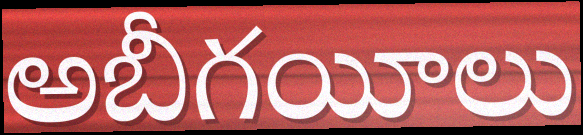
అబీగయీలు